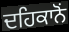
ਦਹਿਕਾਨੋਂ